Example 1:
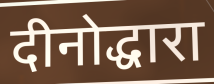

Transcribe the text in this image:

दीनोद्धारा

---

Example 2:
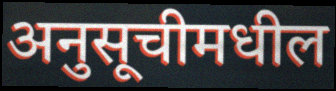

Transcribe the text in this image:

अनुसूचीमधील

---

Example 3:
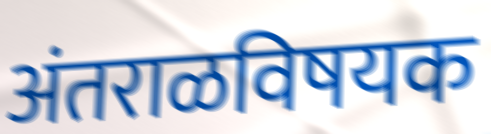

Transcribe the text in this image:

अंतराळविषयक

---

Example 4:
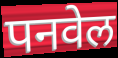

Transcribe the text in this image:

पनवेल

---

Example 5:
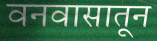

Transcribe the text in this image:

वनवासातून